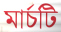
মার্চটি